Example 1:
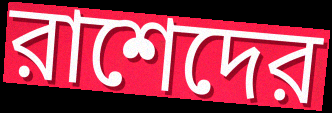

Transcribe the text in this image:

রাশেদের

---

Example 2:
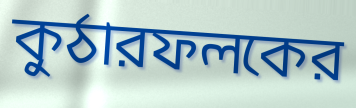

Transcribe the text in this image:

কুঠারফলকের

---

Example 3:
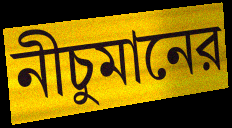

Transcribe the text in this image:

নীচুমানের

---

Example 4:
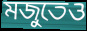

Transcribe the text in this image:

মজুতেও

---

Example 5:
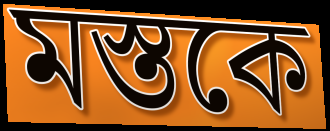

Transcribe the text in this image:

মস্তকে